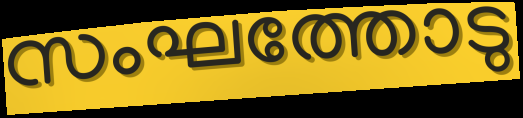
സംഘത്തോടു